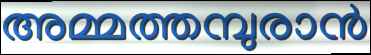
അമ്മത്തമ്പുരാൻ